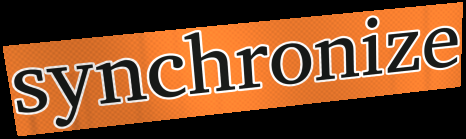
synchronize